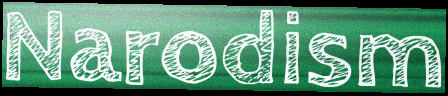
Narodism